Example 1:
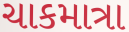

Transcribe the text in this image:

ચાકમાત્રા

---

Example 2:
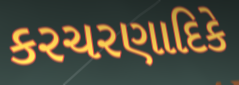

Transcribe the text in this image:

કરચરણાદિકે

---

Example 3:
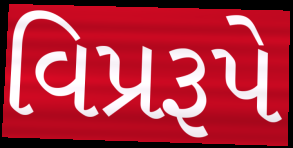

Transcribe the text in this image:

વિપ્રરૂપે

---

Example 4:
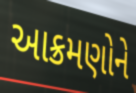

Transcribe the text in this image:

આક્રમણોને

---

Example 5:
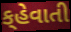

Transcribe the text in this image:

ક્‌હેવાતી